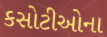
કસોટીઓના